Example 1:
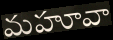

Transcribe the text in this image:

మహూవా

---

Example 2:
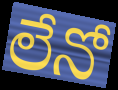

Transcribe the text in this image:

లేనో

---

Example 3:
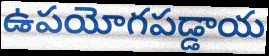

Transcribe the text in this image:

ఉపయోగపడ్డాయ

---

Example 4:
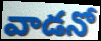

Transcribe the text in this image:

వాడనో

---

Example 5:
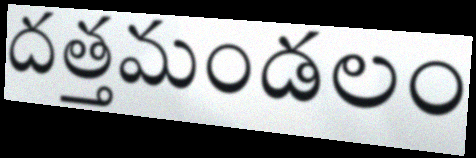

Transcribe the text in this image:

దత్తమండలం